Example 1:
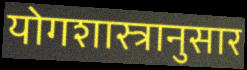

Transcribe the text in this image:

योगशास्त्रानुसार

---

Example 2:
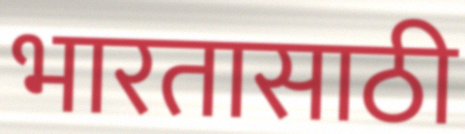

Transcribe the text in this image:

भारतासाठी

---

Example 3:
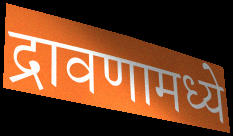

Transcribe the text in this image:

द्रावणामध्ये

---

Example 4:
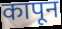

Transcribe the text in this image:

कापून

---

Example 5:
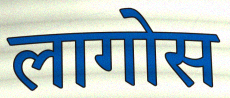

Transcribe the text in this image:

लागोस